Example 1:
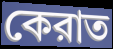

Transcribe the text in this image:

কেরাত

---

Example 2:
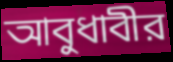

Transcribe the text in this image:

আবুধাবীর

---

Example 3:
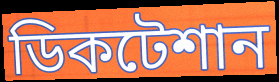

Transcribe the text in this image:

ডিকটেশান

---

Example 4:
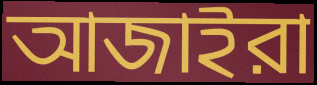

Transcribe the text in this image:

আজাইরা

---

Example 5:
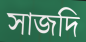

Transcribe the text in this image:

সাজদি